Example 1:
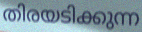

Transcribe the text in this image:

തിരയടിക്കുന്ന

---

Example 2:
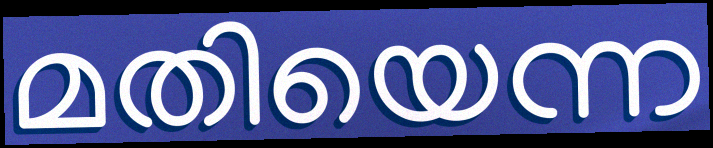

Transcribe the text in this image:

മതിയെന്ന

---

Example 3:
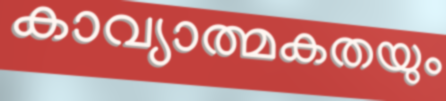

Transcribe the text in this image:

കാവ്യാത്മകതയും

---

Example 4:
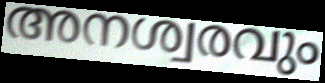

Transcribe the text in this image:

അനശ്വരവും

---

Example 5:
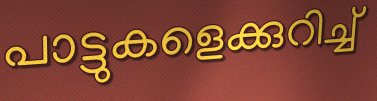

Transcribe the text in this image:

പാട്ടുകളെക്കുറിച്ച്